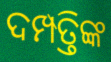
ଦମ୍ପତ୍ତିଙ୍କ